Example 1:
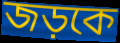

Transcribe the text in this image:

জড়কে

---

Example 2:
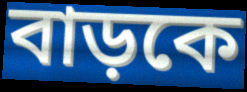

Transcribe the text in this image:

বাড়কে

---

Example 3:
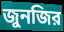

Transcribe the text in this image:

জুনজির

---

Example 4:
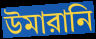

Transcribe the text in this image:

উমারানি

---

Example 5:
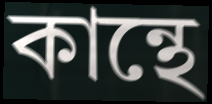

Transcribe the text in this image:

কান্থে